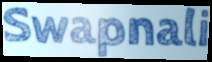
Swapnali